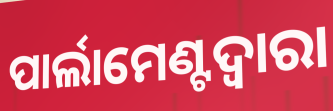
ପାର୍ଲାମେଣ୍ଟଦ୍ୱାରା